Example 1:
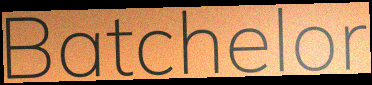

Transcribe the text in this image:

Batchelor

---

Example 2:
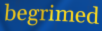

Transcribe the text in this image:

begrimed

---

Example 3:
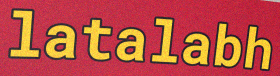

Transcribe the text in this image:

latalabh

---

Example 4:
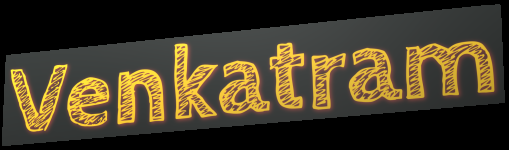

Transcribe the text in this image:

Venkatram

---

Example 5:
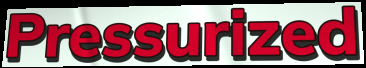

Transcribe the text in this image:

Pressurized